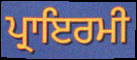
ਪ੍ਰਾਇਰਮੀ